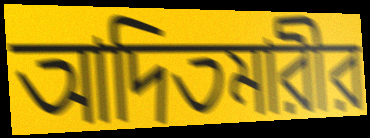
আদিতমারীর